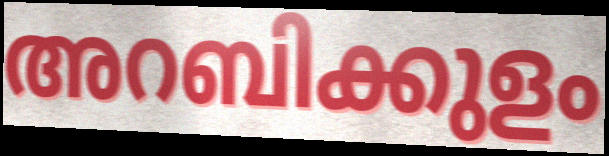
അറബിക്കുളം